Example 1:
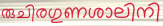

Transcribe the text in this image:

രുചിരഗുണശാലിനി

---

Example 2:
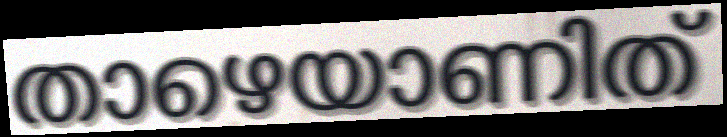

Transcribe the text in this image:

താഴെയാണിത്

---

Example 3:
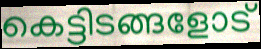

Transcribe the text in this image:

കെട്ടിടങ്ങളോട്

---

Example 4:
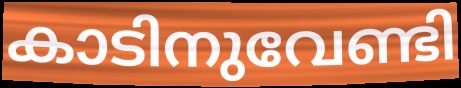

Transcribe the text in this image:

കാടിനുവേണ്ടി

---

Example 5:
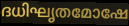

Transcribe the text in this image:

ദധിഘൃതമോഷേ